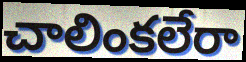
చాలింకలేరా